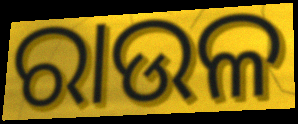
ରାଉଳ